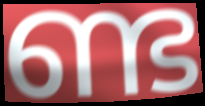
ണ്ട